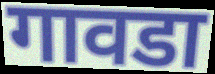
गावडा